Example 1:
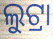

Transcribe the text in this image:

ଲୁଟ୍ରା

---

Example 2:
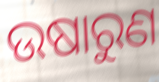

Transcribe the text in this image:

ଉଷାରୁଣ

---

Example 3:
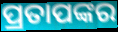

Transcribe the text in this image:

ପ୍ରତାପଙ୍କର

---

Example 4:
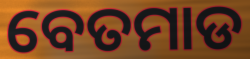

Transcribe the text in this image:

ବେତମାଡ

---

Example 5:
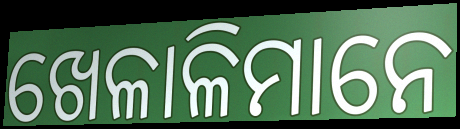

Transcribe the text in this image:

ଖେଳାଳିମାନେ